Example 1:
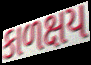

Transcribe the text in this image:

કાળક્ષય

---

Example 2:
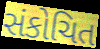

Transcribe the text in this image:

સંકોચિત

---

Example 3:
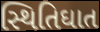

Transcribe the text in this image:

સ્થિતિઘાત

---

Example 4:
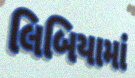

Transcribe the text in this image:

લિબિયામાં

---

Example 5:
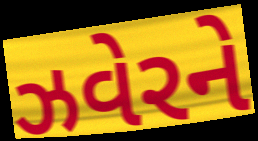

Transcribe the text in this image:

ઝવેરને